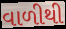
વાળીથી